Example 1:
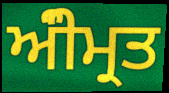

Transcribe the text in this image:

ਅੰੀਮ੍ਰਤ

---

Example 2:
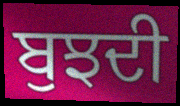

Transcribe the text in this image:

ਬੁਝਦੀ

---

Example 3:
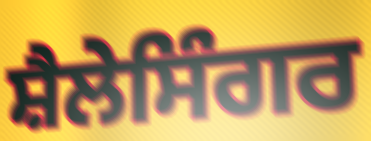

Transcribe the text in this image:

ਸ਼ੈਲੇਸਿੰਗਰ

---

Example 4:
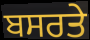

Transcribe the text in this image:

ਬਸਰਤੇ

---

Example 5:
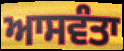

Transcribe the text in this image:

ਆਸਵੰਤਾ